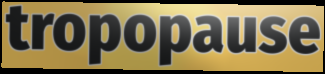
tropopause